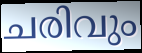
ചരിവും